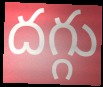
దగ్గు